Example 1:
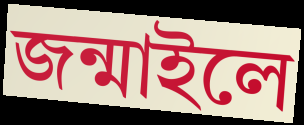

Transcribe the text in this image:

জন্মাইলে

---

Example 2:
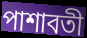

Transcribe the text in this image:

পাশাবতী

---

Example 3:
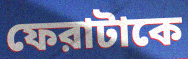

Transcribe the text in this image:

ফেরাটাকে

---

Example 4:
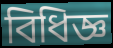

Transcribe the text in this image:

বিধিজ্ঞ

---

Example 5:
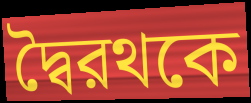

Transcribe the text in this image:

দ্বৈরথকে